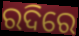
ରଦିରେ